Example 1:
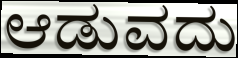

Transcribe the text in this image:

ಆಡುವದು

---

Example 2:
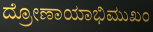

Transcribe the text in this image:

ದ್ರೋಣಾಯಾಭಿಮುಖಂ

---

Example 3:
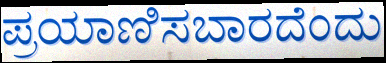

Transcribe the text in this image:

ಪ್ರಯಾಣಿಸಬಾರದೆಂದು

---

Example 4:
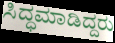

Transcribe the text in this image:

ಸಿದ್ಧಮಾಡಿದ್ದರು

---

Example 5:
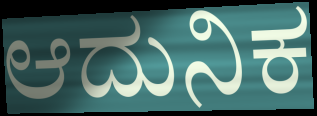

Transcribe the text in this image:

ಆದುನಿಕ